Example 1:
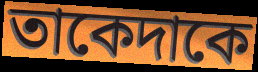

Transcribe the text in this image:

তাকেদাকে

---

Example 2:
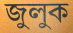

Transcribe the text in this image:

জুলুক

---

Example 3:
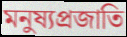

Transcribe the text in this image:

মনুষ্যপ্রজাতি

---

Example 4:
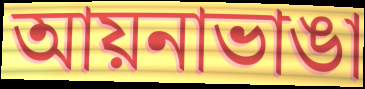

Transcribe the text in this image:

আয়নাভাঙা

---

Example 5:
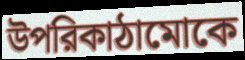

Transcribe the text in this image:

উপরিকাঠামোকে